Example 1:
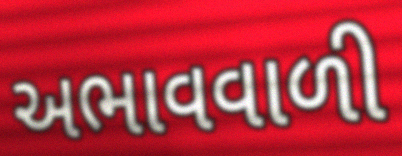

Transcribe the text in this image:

અભાવવાળી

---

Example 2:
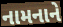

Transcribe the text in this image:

નામનાને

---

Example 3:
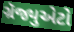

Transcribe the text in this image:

ગ્રૅજ્યુએટો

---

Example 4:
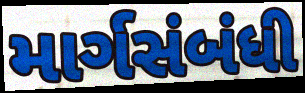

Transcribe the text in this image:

માર્ગસંબંધી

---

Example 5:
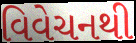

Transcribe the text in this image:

વિવેચનથી